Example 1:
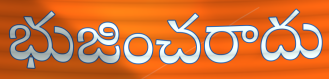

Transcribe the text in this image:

భుజించరాదు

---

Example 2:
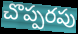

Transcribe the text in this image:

చొప్పరపు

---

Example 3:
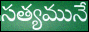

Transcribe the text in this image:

సత్యమునే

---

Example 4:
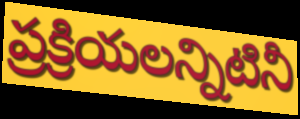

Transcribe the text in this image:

ప్రక్రియలన్నిటినీ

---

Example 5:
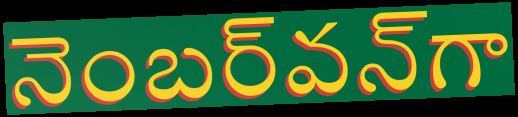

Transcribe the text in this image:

నెంబర్‌వన్‌గా